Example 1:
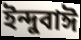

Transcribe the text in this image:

ইন্দুবাঈ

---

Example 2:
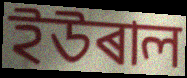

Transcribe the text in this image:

ইউৰাল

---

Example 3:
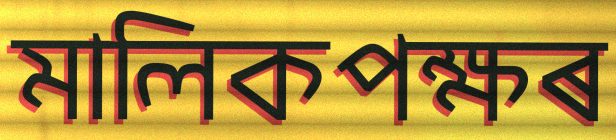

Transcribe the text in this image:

মালিকপক্ষৰ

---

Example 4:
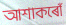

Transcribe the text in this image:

আশাকৰোঁ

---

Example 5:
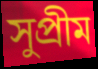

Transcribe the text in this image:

সুপ্ৰীম